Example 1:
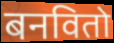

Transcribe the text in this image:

बनवितो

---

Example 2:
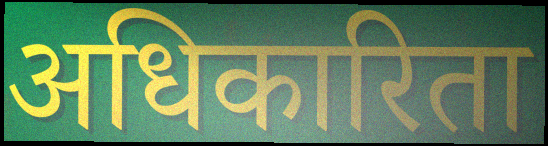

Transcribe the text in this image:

अधिकारिता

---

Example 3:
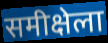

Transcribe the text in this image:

समीक्षेला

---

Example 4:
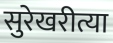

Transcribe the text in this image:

सुरेखरीत्या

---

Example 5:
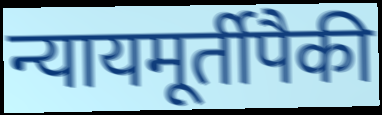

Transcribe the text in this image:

न्यायमूर्तीपैकी